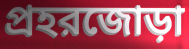
প্রহরজোড়া